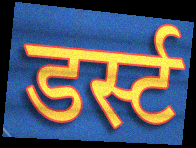
डर्स्ट